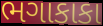
ભગાકાકા